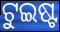
ଟୁଇଷ୍ଟ